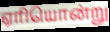
ஏரியொன்று